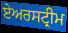
ਏਅਰਸਟ੍ਰੀਮ